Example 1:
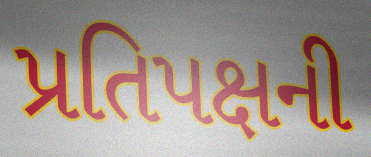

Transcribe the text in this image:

પ્રતિપક્ષની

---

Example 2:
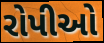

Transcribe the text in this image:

રોપીઓ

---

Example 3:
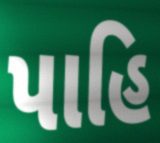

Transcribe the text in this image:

પાહિ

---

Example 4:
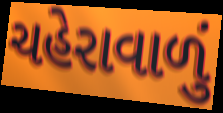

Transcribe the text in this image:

ચહેરાવાળું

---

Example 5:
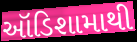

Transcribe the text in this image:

ઑડિશામાથી